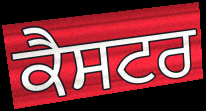
ਕੈਸਟਰ